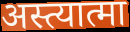
अस्त्यात्मा